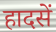
हादसें